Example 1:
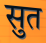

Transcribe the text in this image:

सुत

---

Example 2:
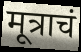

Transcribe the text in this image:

मूत्राचं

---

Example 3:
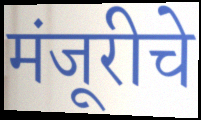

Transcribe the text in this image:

मंजूरीचे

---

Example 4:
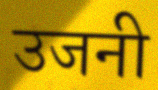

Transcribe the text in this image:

उजनी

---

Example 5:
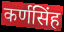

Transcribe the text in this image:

कर्णसिंह